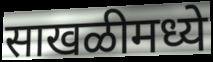
साखळीमध्ये